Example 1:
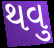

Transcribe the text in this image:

થવુ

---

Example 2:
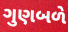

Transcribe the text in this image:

ગુણબળે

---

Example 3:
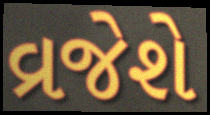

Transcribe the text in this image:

વ્રજેશે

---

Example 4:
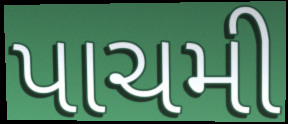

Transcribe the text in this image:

પાચમી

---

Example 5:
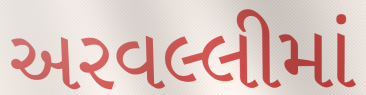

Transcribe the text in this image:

અરવલ્લીમાં